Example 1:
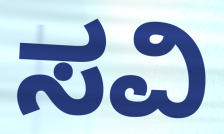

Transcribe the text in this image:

ಸವಿ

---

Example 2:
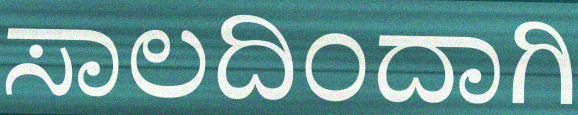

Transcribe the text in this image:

ಸಾಲದಿಂದಾಗಿ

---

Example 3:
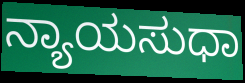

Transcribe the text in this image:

ನ್ಯಾಯಸುಧಾ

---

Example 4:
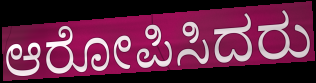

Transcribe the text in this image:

ಆರೋಪಿಸಿದರು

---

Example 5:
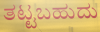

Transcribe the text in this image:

ತಟ್ಟಬಹುದು